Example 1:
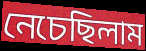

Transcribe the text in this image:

নেচেছিলাম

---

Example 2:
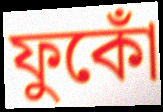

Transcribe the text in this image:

ফুকোঁ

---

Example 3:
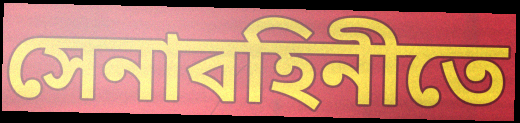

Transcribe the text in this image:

সেনাবহিনীতে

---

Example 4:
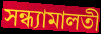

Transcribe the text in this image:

সন্ধ্যামালতী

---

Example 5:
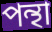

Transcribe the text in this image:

পন্থা